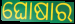
ଘୋଷାର